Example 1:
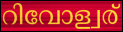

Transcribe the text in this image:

റിവോള്വര്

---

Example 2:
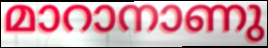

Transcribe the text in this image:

മാറാനാണു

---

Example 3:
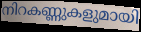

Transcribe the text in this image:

നിറകണ്ണുകളുമായി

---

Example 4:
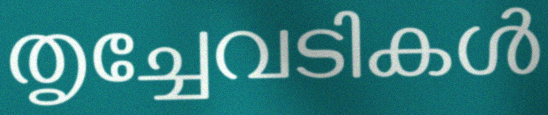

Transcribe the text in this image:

തൃച്ചേവടികൾ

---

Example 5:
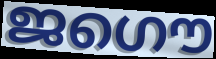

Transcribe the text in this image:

ജഗൌ